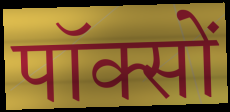
पॉक्सों